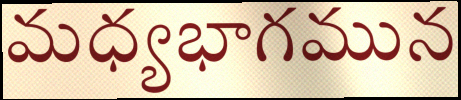
మధ్యభాగమున